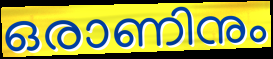
ഒരാണിനും